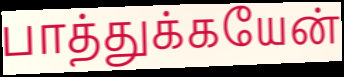
பாத்துக்கயேன்